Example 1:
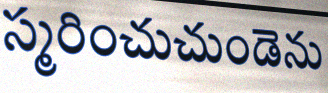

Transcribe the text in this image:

స్మరించుచుండెను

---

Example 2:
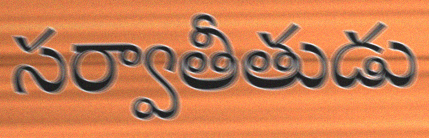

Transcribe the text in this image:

సర్వాతీతుడు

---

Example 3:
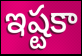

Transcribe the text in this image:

ఇష్టకా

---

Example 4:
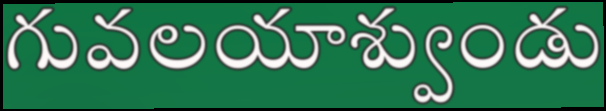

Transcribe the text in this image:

గువలయాశ్వుండు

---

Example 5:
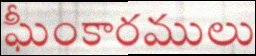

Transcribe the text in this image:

ఘీంకారములు